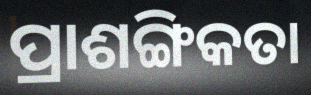
ପ୍ରାଶଙ୍ଗିକତା